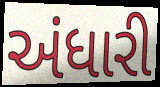
અંધારી